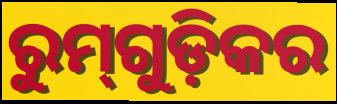
ରୁମ୍‌ଗୁଡ଼ିକର